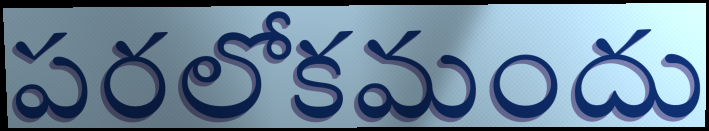
పరలోకమందు